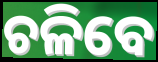
ଚଳିବେ